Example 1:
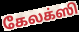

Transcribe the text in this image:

கேலக்ஸி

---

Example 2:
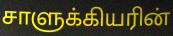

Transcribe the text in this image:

சாளுக்கியரின்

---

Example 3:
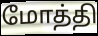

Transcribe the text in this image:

மோத்தி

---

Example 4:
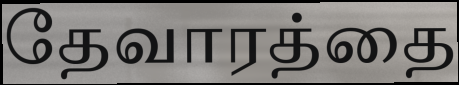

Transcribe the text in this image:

தேவாரத்தை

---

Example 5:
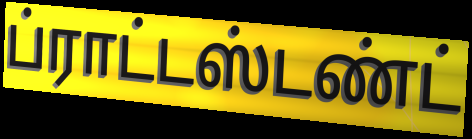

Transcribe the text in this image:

ப்ராட்டஸ்டண்ட்